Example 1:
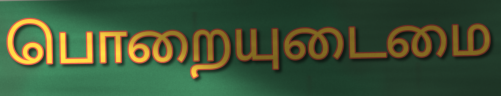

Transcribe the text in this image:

பொறையுடைமை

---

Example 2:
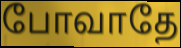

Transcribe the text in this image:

போவாதே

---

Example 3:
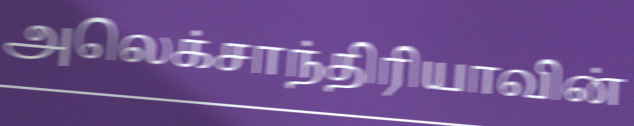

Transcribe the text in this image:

அலெக்சாந்திரியாவின்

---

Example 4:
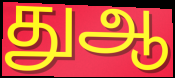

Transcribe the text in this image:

துஆ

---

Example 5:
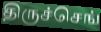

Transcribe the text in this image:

திருச்செங்